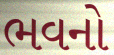
ભવનો